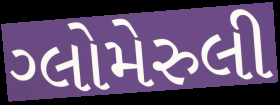
ગ્લોમેરુલી